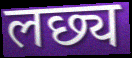
लछ्य